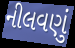
નીલવણું